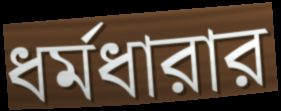
ধর্মধারার